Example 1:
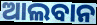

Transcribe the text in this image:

ଆଲବାନ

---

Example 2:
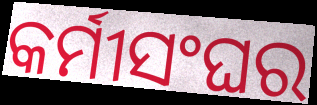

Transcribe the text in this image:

କର୍ମୀସଂଘର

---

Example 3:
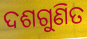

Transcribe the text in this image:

ଦଶଗୁଣିତ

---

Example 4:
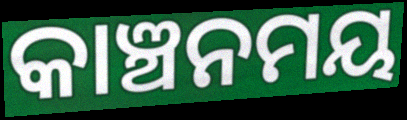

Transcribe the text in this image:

କାଞ୍ଚନମୟ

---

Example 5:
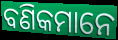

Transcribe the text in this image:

ବଣିକମାନେ